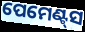
ପେମେଣ୍ଟ୍‌ସ